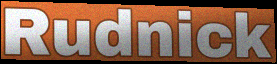
Rudnick